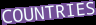
COUNTRIES